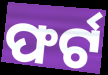
ଫର୍ଟ